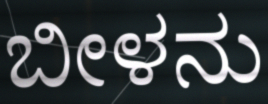
ಬೀಳನು